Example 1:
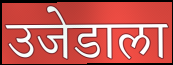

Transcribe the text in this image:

उजेडाला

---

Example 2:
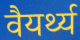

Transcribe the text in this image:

वैयर्थ्य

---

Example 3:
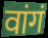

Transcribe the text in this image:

वांगं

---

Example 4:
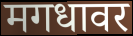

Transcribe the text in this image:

मगधावर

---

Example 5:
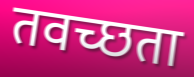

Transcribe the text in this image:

तवच्छता